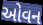
ઓવન